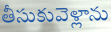
తీసుకువెళ్లాను